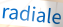
radiale